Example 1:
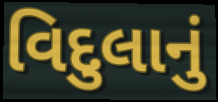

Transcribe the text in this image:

વિદુલાનું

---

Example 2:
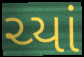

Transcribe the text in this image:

ચ્યાં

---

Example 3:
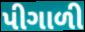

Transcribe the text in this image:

પીગાળી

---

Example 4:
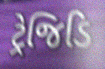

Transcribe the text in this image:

ટ્રેજિડિ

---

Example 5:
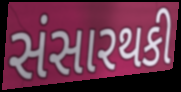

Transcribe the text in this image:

સંસારથકી